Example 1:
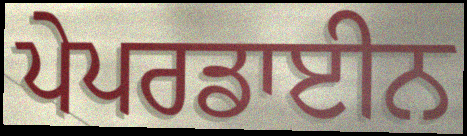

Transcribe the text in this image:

ਪੇਪਰਡਾਈਨ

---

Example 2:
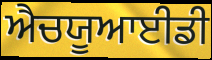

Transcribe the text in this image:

ਐਚਯੂਆਈਡੀ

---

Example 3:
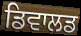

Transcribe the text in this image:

ਡਿਵਾਲਡ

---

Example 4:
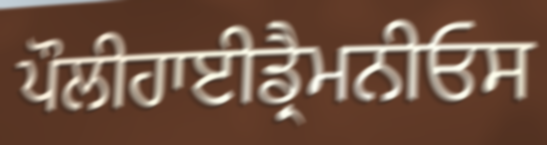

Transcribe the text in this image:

ਪੌਲੀਹਾਈਡ੍ਰੈਮਨੀਓਸ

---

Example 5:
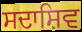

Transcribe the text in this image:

ਸਦਾਸ਼ਿਵ